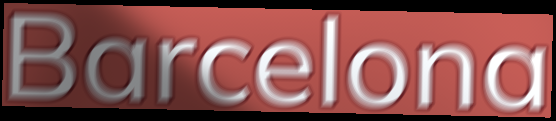
Barcelona